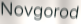
Novgorod